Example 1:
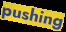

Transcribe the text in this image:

pushing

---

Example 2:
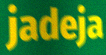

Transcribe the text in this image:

jadeja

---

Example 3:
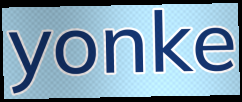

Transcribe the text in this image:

yonke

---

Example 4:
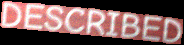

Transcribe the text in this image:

DESCRIBED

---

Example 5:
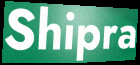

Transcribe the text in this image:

Shipra